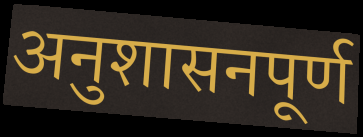
अनुशासनपूर्ण